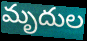
మృదుల